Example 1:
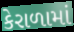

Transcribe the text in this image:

કેરાળામાં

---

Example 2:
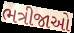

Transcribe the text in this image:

ભત્રીજાઓ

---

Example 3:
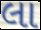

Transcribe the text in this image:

લા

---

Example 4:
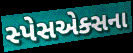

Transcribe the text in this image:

સ્પેસએક્સના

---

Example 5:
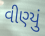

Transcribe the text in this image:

વીણ્યું